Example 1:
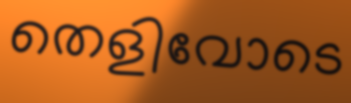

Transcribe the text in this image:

തെളിവോടെ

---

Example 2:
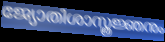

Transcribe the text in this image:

ജ്യോതിശാസ്ത്രജ്ഞനും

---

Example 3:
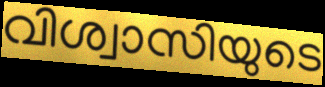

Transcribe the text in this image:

വിശ്വാസിയുടെ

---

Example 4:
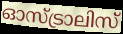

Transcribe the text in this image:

ഓസ്ട്രാലിസ്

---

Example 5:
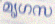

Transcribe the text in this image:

മൃഗസ